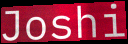
Joshi